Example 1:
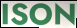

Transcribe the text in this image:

ISON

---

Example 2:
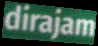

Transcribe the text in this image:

dirajam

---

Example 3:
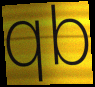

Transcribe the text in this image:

qb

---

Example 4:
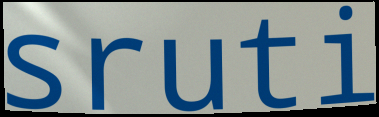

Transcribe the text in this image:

sruti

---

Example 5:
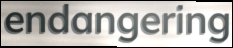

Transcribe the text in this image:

endangering